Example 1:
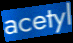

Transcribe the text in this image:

acetyl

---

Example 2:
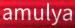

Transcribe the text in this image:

amulya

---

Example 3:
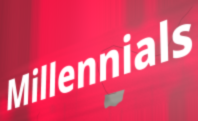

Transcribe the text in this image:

Millennials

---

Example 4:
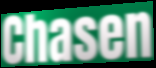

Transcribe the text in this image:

Chasen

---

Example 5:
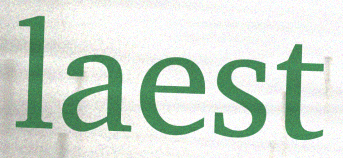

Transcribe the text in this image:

laest